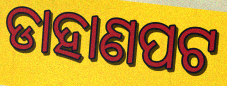
ଡାହାଣପଟ